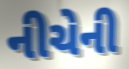
નીચેની